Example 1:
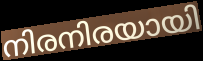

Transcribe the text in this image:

നിരനിരയായി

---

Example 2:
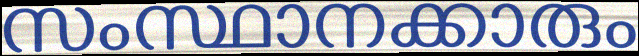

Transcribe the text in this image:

സംസ്ഥാനക്കാരും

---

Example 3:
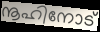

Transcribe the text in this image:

നൂഹിനോട്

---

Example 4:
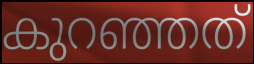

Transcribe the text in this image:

കുറഞ്ഞത്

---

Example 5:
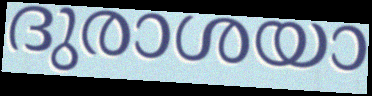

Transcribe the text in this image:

ദുരാശയാ